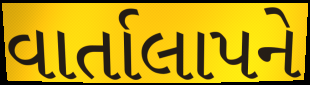
વાર્તાલાપને